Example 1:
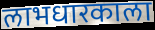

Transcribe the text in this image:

लाभधारकाला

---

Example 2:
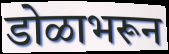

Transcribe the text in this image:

डोळाभरून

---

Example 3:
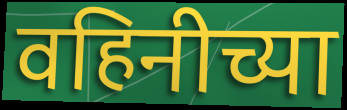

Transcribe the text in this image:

वहिनीच्या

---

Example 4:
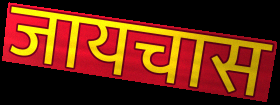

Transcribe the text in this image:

जायचास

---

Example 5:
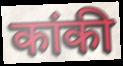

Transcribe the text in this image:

कांकी